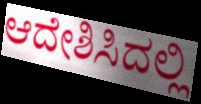
ಆದೇಶಿಸಿದಲ್ಲಿ